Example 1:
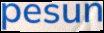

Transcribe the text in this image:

pesun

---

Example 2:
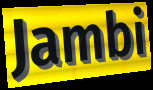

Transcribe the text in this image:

Jambi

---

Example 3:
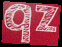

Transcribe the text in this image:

qz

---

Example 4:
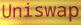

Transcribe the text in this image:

Uniswap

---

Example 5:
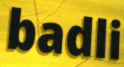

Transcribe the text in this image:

badli